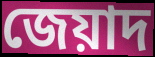
জেয়াদ